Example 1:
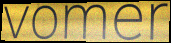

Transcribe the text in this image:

vomer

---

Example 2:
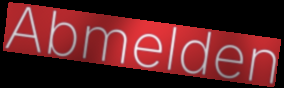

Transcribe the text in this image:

Abmelden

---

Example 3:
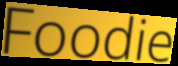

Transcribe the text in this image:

Foodie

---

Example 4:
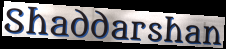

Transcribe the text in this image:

Shaddarshan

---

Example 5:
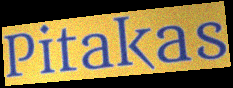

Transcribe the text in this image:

Pitakas